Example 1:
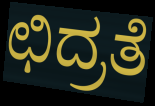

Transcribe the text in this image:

ಛಿದ್ರತೆ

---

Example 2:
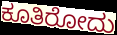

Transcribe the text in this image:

ಕೂತಿರೋದು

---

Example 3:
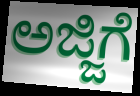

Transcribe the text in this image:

ಅಜ್ಜಿಗೆ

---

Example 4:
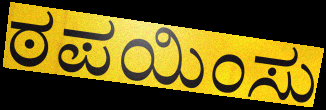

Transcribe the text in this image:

ಠಪಯಿಂಸು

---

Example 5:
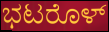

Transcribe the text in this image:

ಭಟರೊಳ್